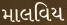
માલવિય